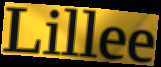
Lillee